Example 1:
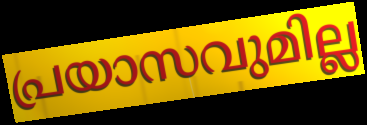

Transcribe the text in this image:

പ്രയാസവുമില്ല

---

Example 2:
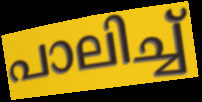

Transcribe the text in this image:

പാലിച്ച്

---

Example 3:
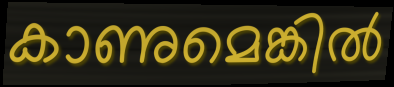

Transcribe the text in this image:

കാണുമെങ്കിൽ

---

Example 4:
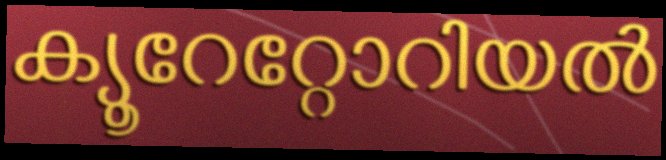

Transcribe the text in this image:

ക്യൂറേറ്റോറിയൽ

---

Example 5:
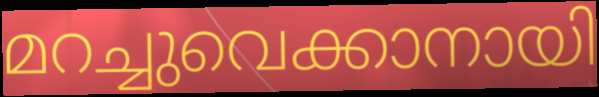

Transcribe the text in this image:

മറച്ചുവെക്കാനായി